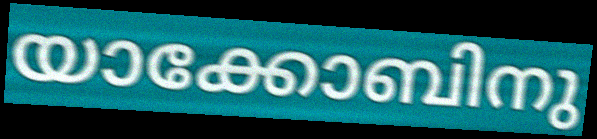
യാക്കോബിനു